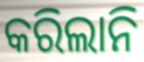
କରିଲାନି